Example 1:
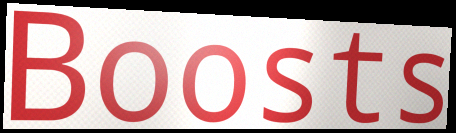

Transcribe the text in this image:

Boosts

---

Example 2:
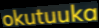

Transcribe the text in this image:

okutuuka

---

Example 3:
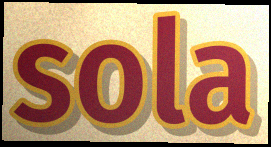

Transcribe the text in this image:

sola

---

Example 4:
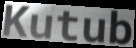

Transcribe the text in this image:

Kutub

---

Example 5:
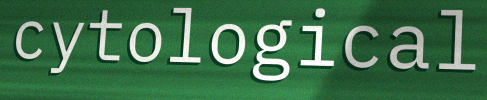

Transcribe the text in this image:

cytological